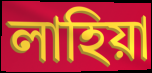
লাহিয়া